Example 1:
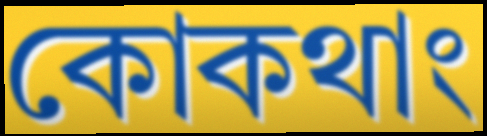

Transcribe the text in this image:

কোকথাং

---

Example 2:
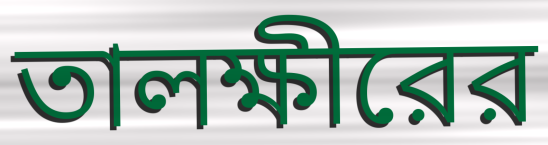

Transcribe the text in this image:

তালক্ষীরের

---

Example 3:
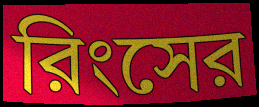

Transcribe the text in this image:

রিংসের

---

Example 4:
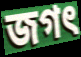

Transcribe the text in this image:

জগৎ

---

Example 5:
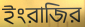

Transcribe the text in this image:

ইংরাজির